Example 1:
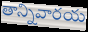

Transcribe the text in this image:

తాన్నివారయ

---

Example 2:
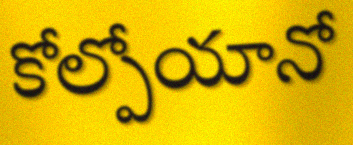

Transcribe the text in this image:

కోల్పోయానో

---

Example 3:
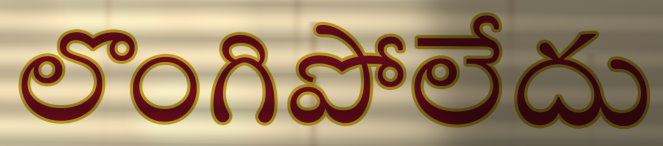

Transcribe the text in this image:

లొంగిపోలేదు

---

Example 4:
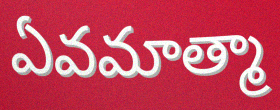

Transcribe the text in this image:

ఏవమాత్మా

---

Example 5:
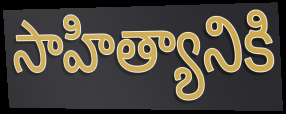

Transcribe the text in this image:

సాహిత్యానికి